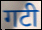
गटी